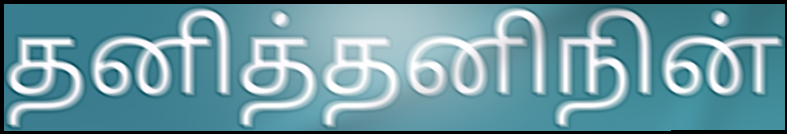
தனித்தனிநின்